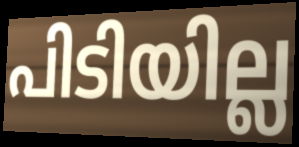
പിടിയില്ല